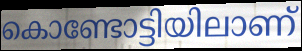
കൊണ്ടോട്ടിയിലാണ്